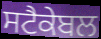
ਸਟੈਕੇਬਲ